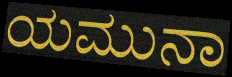
ಯಮುನಾ